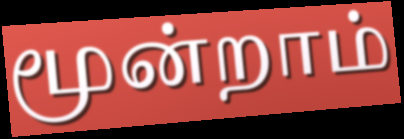
மூன்றாம்